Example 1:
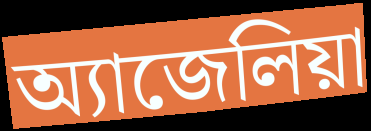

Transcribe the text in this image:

অ্যাজেলিয়া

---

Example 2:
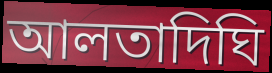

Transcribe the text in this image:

আলতাদিঘি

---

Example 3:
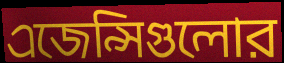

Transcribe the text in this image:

এজেন্সিগুলোর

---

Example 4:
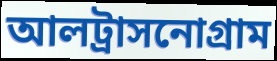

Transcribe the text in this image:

আলট্রাসনোগ্রাম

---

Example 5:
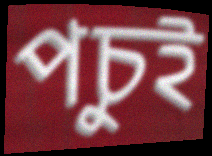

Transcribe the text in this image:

পচুই